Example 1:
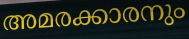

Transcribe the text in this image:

അമരക്കാരനും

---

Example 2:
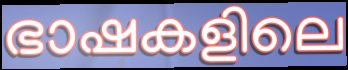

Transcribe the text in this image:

ഭാഷകളിലെ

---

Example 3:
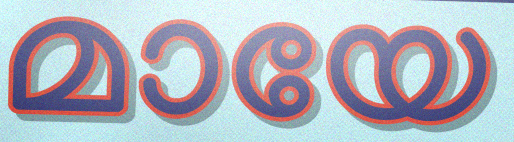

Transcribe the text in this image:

മായേ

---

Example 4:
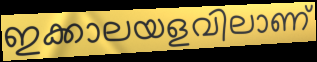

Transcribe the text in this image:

ഇക്കാലയളവിലാണ്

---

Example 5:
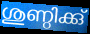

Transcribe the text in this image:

ശുണ്ഠിക്കു്